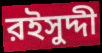
রইসুদ্দী